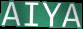
AIYA